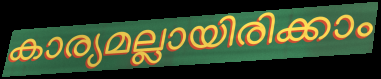
കാര്യമല്ലായിരിക്കാം